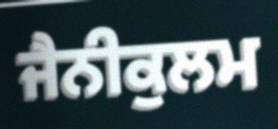
ਜੈਨੀਕੁਲਮ